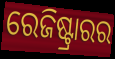
ରେଜିଷ୍ଟ୍ରାରର